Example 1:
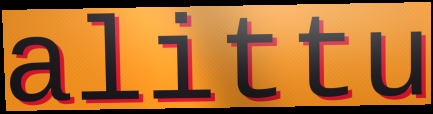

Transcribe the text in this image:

alittu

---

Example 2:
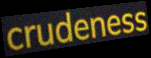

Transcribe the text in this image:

crudeness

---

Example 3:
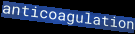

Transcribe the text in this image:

anticoagulation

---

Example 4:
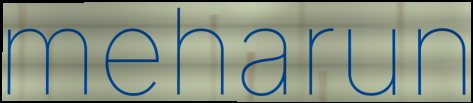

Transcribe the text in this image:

meharun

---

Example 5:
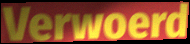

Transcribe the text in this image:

Verwoerd